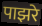
पाझरे